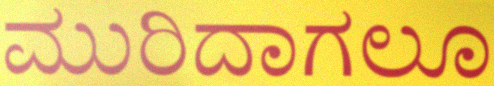
ಮುರಿದಾಗಲೂ